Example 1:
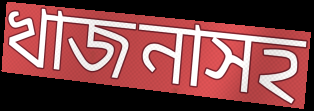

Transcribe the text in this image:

খাজনাসহ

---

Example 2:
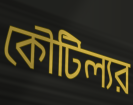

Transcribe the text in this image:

কৌটিল্যর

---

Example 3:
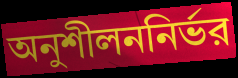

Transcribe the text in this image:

অনুশীলননির্ভর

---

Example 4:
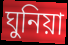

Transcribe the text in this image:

ঘুনিয়া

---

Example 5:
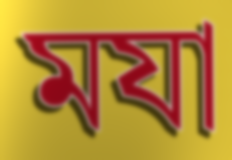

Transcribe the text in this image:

মযা